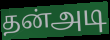
தன்அடி